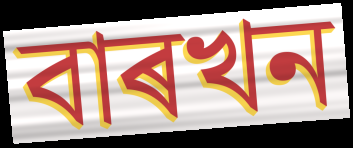
বাৰখন